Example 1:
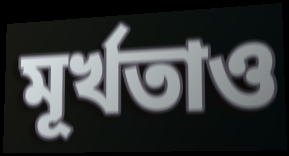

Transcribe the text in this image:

মূর্খতাও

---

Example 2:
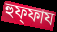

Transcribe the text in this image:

হুফ্ফায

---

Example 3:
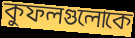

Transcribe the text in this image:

কুফলগুলোকে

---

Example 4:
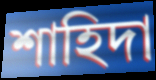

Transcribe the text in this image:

শাহিদা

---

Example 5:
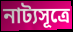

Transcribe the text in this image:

নাট্যসূত্রে